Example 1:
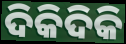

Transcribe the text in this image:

ଦିକିଦିକି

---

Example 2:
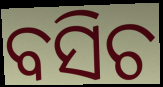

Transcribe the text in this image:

ବସିଚ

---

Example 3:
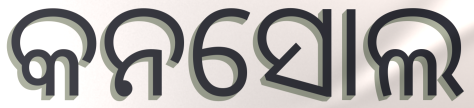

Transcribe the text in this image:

କନସୋଲ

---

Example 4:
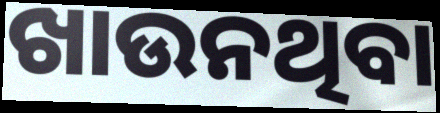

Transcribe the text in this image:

ଖାଉନଥିବା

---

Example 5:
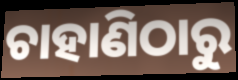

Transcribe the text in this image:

ଚାହାଣିଠାରୁ